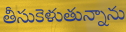
తీసుకెళుతున్నాను